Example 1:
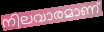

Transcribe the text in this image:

നിലവാരമാണ്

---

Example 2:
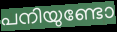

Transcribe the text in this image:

പനിയുണ്ടോ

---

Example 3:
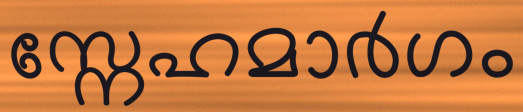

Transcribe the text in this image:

സ്നേഹമാർഗം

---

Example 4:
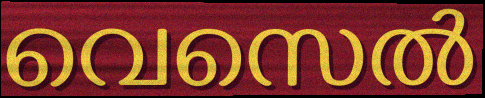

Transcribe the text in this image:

വെസെൽ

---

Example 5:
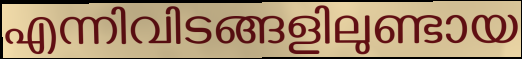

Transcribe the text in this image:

എന്നിവിടങ്ങളിലുണ്ടായ